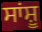
ਸਾਂਸ਼ੂ